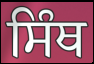
ਸਿੰਥ